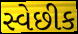
સ્વેછીક